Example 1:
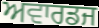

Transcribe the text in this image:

ਅਵਾਰਡਜ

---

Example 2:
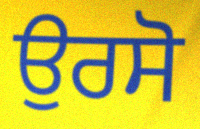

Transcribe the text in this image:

ਉਰਸੋ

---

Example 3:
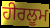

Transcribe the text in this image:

ਹੀਰਲੂਮ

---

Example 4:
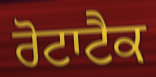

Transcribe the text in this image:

ਰੋਟਾਟੈਕ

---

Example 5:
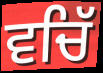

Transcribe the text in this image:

ਵਚਿੱ